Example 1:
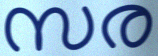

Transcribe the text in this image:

സര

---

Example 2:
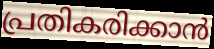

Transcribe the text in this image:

പ്രതികരിക്കാൻ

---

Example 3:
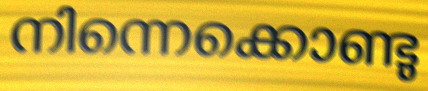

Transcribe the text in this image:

നിന്നെക്കൊണ്ടു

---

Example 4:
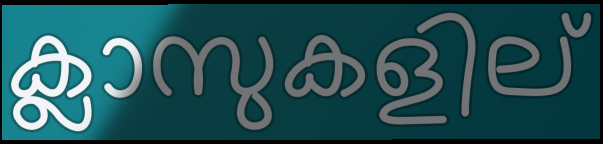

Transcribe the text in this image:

ക്ലാസുകളില്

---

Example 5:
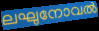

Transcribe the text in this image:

ലഘുനോവൽ